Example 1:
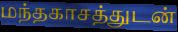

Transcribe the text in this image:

மந்தகாசத்துடன்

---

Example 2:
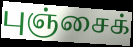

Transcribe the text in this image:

புஞ்சைக்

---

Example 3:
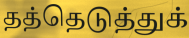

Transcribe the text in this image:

தத்தெடுத்துக்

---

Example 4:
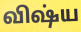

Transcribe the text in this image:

விஷ்ய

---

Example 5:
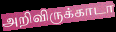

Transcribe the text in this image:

அறிவிருக்காடா